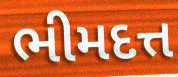
ભીમદત્ત